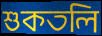
শুকতলি